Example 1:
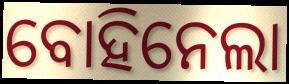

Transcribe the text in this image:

ବୋହିନେଲା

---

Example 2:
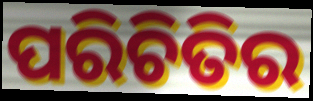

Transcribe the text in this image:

ପରିଚିତିର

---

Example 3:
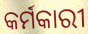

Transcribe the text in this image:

କର୍ମକାରୀ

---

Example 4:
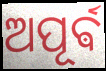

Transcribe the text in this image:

ଅପୂର୍ଵ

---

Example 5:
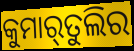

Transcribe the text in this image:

କୁମାର୍‌ତୁଲିର